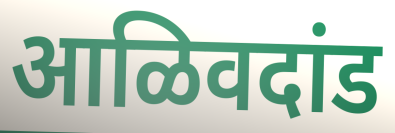
आळिवदांड